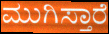
ಮುಗಿಸ್ತಾರೆ